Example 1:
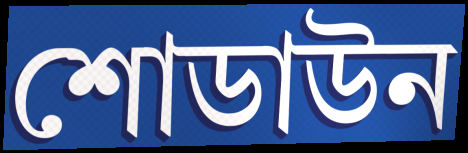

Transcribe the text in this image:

শোডাউন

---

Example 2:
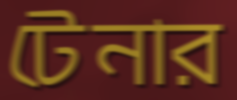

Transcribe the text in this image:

টেনার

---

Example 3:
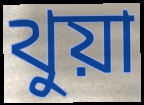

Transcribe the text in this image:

থুয়া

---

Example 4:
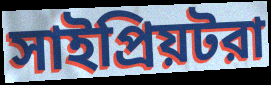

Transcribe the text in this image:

সাইপ্রিয়টরা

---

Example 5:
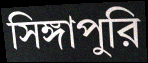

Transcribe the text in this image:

সিঙ্গাপুরি